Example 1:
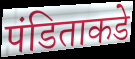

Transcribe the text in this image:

पंडिताकडे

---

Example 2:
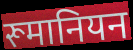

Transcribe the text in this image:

रूमानियन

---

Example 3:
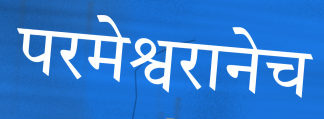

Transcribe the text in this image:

परमेश्वरानेच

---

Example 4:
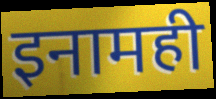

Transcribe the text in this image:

इनामही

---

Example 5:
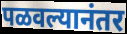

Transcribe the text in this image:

पळवल्यानंतर